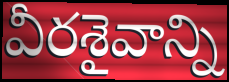
వీరశైవాన్ని